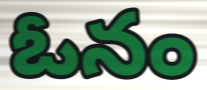
ఓనం